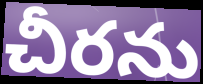
చీరను